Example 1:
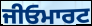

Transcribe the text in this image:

ਜੀਓਮਾਰਟ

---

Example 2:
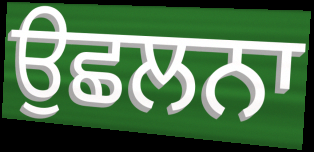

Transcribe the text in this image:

ਉਛਲਨਾ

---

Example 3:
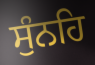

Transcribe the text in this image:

ਸੁੰਨਹਿ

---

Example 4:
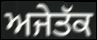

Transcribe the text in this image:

ਅਜੇਤੱਕ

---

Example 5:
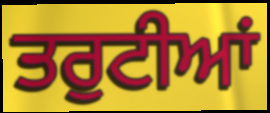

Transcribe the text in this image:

ਤਰੁਟੀਆਂ